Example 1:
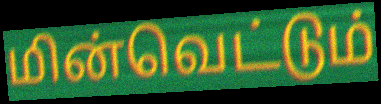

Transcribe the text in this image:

மின்வெட்டும்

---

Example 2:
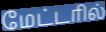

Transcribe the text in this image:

மேட்டரில்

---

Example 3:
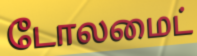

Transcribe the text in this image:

டோலமைட்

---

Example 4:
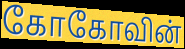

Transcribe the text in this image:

கோகோவின்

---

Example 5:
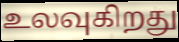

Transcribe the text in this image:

உலவுகிறது